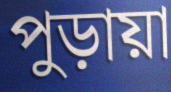
পুড়ায়া